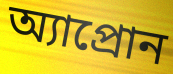
অ্যাপ্রোন